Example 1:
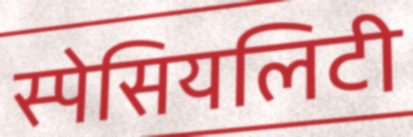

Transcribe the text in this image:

स्पेसियलिटी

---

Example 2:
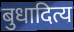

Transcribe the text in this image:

बुधादित्य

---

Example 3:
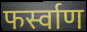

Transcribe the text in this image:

फर्स्वाण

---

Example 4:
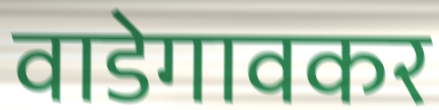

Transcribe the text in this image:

वाडेगावकर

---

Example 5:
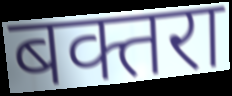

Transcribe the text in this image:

बक्तरा